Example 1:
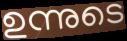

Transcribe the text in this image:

ഉന്നുടെ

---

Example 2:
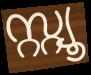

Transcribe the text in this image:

സ്റ്റ്യൂ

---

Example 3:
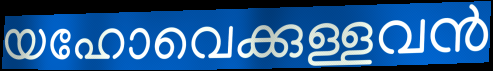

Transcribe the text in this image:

യഹോവെക്കുള്ളവൻ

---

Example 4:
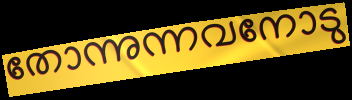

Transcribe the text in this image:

തോന്നുന്നവനോടു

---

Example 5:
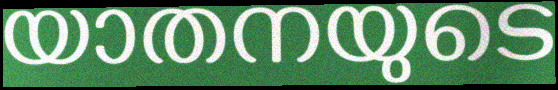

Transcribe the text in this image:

യാതനയുടെ